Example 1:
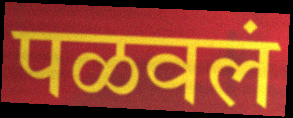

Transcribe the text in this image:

पळवलं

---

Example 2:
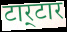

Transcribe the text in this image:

टार्टार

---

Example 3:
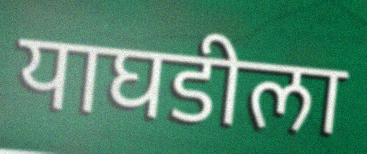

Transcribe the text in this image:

याघडीला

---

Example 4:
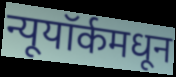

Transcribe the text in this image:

न्यूयॉर्कमधून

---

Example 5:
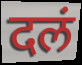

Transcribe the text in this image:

दलं